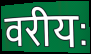
वरीयः